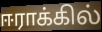
ஈராக்கில்